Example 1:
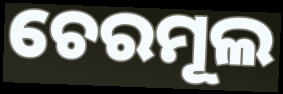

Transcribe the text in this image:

ଚେରମୂଲ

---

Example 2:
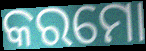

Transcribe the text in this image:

କରମୋ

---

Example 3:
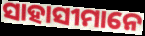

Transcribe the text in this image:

ସାହାସୀମାନେ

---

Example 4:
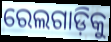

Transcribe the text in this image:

ରେଲଗାଡ଼ିକୁ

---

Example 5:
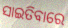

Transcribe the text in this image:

ସାଇତିବାରେ